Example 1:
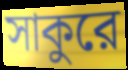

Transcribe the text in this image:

সাকুরে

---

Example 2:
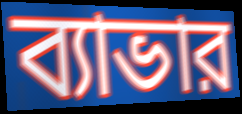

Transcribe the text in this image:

ব্যাভার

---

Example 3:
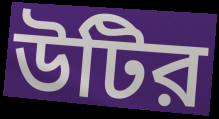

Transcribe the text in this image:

উটির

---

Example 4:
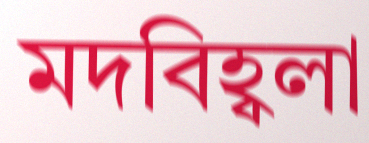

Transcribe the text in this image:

মদবিহ্বলা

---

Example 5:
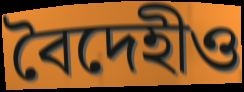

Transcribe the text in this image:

বৈদেহীও